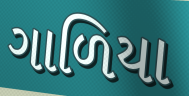
ગાળિયા